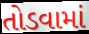
તોડવામાં